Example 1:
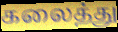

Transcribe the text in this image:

கலைத்து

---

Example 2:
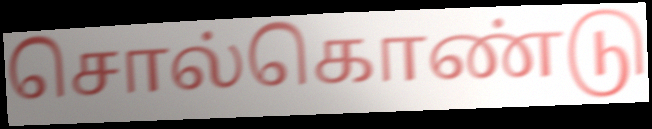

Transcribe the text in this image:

சொல்கொண்டு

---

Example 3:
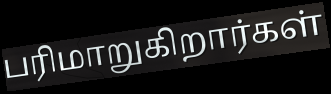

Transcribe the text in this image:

பரிமாறுகிறார்கள்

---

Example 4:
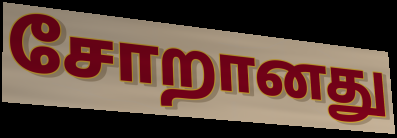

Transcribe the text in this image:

சோறானது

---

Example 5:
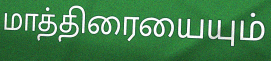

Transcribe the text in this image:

மாத்திரையையும்